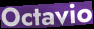
Octavio